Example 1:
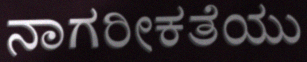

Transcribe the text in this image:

ನಾಗರೀಕತೆಯು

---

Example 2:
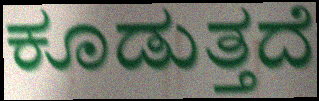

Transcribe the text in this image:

ಕೂಡುತ್ತದೆ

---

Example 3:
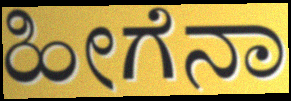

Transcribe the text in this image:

ಹೀಗೆನಾ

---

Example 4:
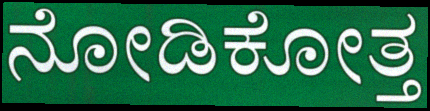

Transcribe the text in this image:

ನೋಡಿಕೋತ್ತ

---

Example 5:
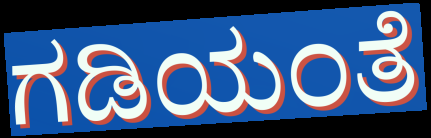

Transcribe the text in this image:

ಗಡಿಯಂತೆ